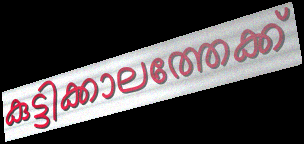
കുട്ടിക്കാലത്തേക്ക്